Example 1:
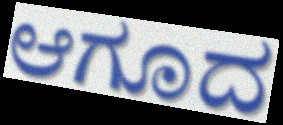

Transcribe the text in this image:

ಆಗೂದ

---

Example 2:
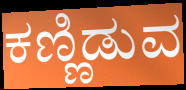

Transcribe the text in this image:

ಕಣ್ಣಿಡುವ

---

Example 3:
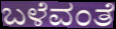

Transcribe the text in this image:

ಬಳೆವಂತೆ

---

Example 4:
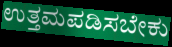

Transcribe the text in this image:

ಉತ್ತಮಪಡಿಸಬೇಕು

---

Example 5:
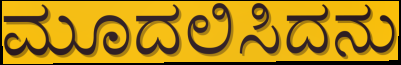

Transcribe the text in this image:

ಮೂದಲಿಸಿದನು